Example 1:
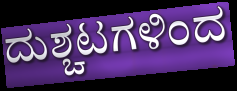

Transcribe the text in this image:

ದುಶ್ಚಟಗಳಿಂದ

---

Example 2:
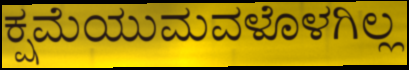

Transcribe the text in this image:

ಕ್ಷಮೆಯುಮವಳೊಳಗಿಲ್ಲ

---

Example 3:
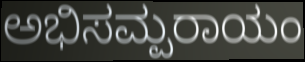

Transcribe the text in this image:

ಅಭಿಸಮ್ಪರಾಯಂ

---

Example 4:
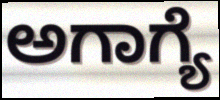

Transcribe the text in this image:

ಅಗಾಗ್ಯೆ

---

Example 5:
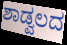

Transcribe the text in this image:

ಶಾಡ್ವಲದ